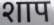
शाप